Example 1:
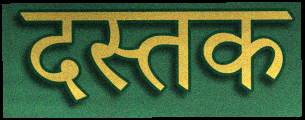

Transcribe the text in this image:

दस्तक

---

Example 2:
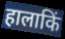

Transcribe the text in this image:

हालाकिं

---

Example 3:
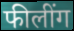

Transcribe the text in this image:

फीलींग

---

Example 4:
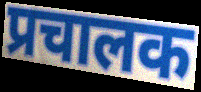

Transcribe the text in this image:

प्रचालक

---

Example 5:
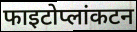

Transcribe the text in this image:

फाइटोप्लांकटन